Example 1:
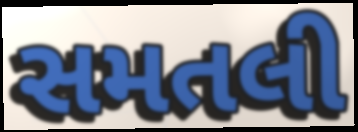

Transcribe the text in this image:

સમતલી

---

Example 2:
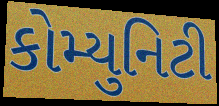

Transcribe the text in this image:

કોમ્યુનિટી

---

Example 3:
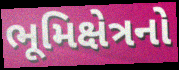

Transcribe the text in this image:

ભૂમિક્ષેત્રનો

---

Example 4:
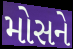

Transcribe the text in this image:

મોસને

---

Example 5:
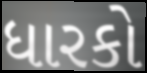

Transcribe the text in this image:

ધારકો